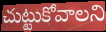
చుట్టుకోవాలని